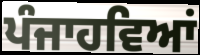
ਪੰਜਾਹਵਿਆਂ